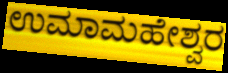
ಉಮಾಮಹೇಶ್ವರ